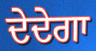
ਦੇਦੇਗਾ